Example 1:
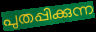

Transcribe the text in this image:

പുതപ്പിക്കുന്ന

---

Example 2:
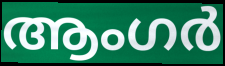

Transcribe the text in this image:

ആംഗർ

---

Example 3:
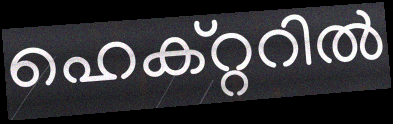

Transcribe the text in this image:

ഹെക്റ്ററിൽ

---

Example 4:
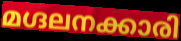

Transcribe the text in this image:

മഗ്ദലനക്കാരി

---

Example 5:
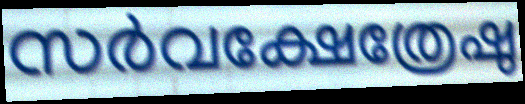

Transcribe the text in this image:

സർവക്ഷേത്രേഷു